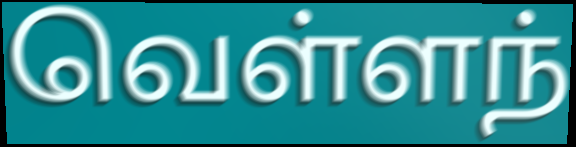
வெள்ளந்